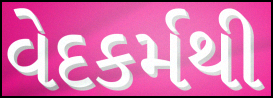
વેદકર્મથી